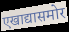
एखाद्यासमोर